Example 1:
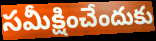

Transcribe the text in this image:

సమీక్షించేందుకు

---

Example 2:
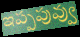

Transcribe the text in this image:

ఇప్పపువ్వు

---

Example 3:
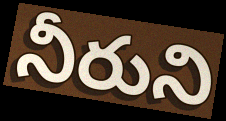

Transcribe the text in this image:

నీరుని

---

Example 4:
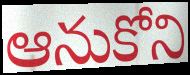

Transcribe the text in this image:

ఆనుకోని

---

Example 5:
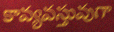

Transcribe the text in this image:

కావ్యవస్తువుగా